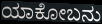
ಯಾಕೋಬನು